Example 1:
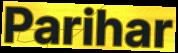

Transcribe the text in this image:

Parihar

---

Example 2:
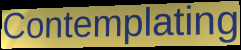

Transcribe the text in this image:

Contemplating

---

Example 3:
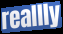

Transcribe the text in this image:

reallly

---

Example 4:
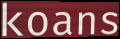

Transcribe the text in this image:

koans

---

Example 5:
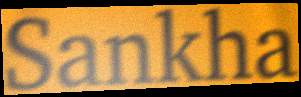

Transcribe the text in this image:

Sankha